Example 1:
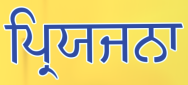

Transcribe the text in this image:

ਪ੍ਰਿਯਜਨਾ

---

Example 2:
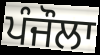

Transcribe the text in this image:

ਪੰਜੌਲਾ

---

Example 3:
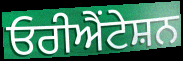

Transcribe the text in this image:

ਓਰੀਐਂਟੇਸ਼ਨ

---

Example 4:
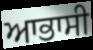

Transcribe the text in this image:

ਆਭਾਸੀ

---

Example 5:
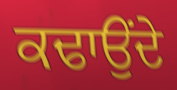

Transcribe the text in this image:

ਕਢਾਉਂਦੇ